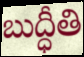
బుద్ధీతి